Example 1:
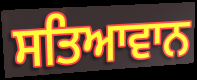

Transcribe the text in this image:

ਸਤਿਆਵਾਨ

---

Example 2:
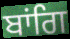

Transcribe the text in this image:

ਬਾਂਗਿ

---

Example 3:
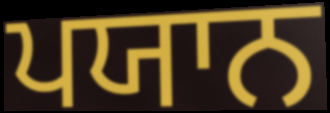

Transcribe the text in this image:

ਪਯਾਨ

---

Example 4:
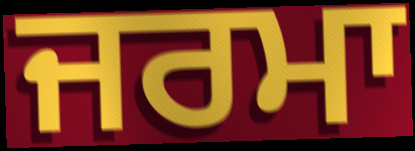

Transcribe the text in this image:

ਜਰਮਾ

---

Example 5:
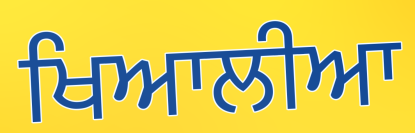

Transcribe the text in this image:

ਖਿਆਲੀਆ